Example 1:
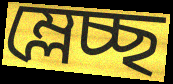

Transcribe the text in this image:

ম্লেচ্ছ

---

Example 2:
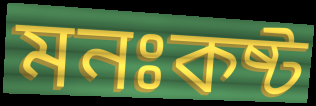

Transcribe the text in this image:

মনঃকষ্ট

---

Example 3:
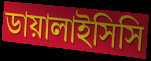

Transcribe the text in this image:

ডায়ালাইসিসি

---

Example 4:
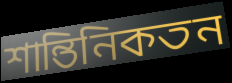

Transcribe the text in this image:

শান্তিনিকতন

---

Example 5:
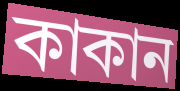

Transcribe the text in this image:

কাকান